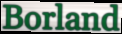
Borland